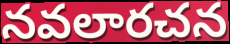
నవలారచన